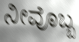
ನೀವೊಬ್ಬ